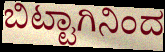
ಬಿಟ್ಟಾಗಿನಿಂದ